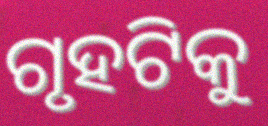
ଗୃହଟିକୁ